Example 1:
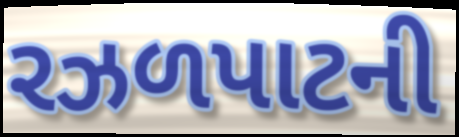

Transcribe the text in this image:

રઝળપાટની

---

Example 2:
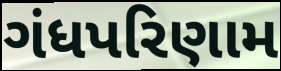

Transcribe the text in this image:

ગંધપરિણામ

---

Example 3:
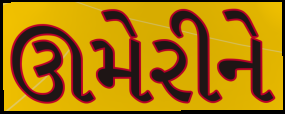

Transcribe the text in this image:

ઊમેરીને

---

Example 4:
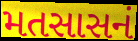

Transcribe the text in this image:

મતસાસનં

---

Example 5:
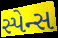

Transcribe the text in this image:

સ્પેન્સ